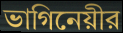
ভাগিনেয়ীর